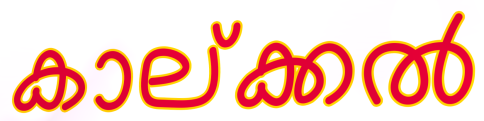
കാല്ക്കൽ